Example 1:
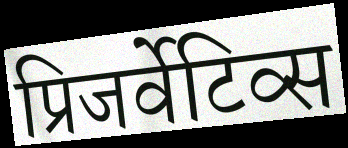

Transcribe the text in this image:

प्रिजर्वेटिव्स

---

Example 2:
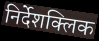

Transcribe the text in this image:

निर्देशक्लिक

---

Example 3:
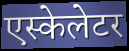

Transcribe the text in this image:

एस्केलेटर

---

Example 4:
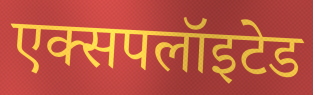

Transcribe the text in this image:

एक्सपलॉइटेड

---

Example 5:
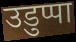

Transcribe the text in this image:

उडुप्पा